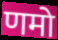
णमो